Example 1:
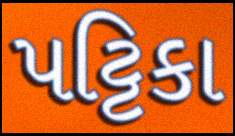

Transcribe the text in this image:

પટ્ટિકા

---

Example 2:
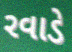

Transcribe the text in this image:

રવાડે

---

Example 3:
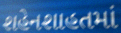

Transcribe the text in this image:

શહેનશાહતમાં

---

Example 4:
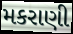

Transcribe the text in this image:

મકરાણી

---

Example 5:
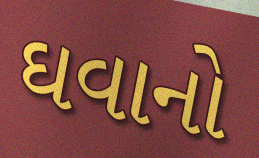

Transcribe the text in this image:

ઘવાનો